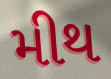
મીથ